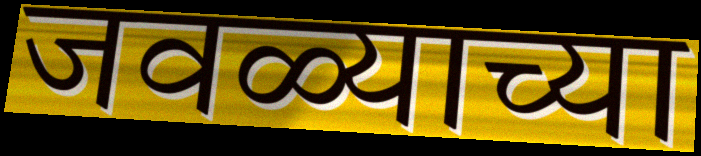
जवळ्याच्या